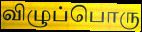
விழுப்பொரு